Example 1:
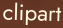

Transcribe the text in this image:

clipart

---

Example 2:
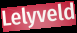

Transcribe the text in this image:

Lelyveld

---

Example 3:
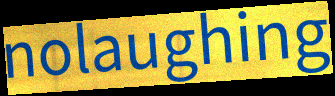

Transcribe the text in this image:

nolaughing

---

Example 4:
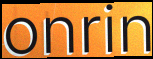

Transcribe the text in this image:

onrin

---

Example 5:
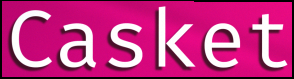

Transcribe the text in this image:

Casket